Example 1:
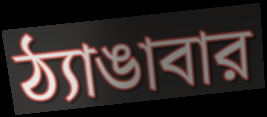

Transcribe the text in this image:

ঠ্যাঙাবার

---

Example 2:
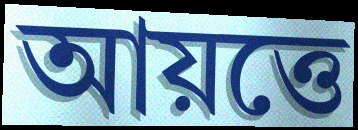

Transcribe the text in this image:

আয়ত্তে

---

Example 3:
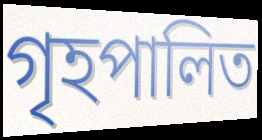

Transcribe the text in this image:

গৃহপালিত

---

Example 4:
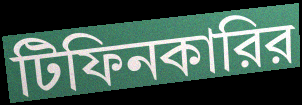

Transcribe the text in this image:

টিফিনকারির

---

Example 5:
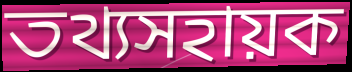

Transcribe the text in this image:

তথ্যসহায়ক